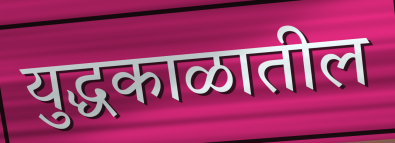
युद्धकाळातील